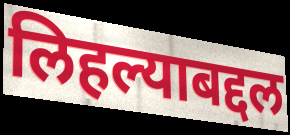
लिहल्याबद्दल